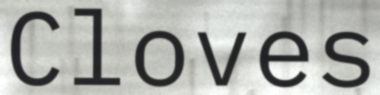
Cloves